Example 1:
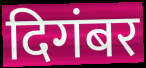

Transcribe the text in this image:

दिगंबर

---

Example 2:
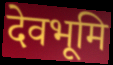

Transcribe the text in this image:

देवभूमि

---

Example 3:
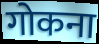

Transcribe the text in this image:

गोकना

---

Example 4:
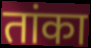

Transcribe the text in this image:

तांका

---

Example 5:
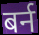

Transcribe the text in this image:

बर्न